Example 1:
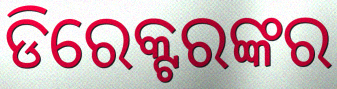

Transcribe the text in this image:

ଡିରେକ୍ଟରଙ୍କର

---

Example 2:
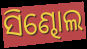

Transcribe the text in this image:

ସିଣ୍ଢୋଲ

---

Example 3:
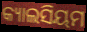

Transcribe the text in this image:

କ୍ୟାଲସିୟମ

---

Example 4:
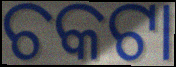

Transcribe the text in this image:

ଚକଟା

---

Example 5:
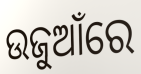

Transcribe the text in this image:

ଉଜୁଆଁରେ